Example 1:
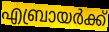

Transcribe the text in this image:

എബ്രായർക്ക്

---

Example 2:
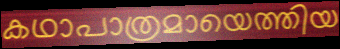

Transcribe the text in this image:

കഥാപാത്രമായെത്തിയ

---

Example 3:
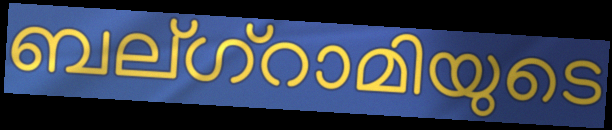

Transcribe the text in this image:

ബല്ഗ്റാമിയുടെ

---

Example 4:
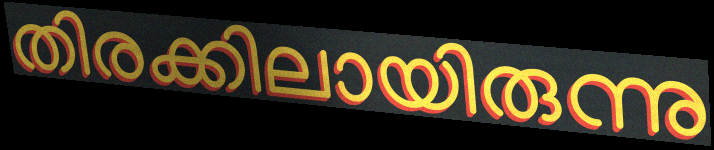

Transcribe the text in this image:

തിരക്കിലായിരുന്നു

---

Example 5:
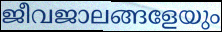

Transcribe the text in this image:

ജീവജാലങ്ങളേയും